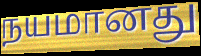
நயமானது